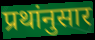
प्रथांनुसार